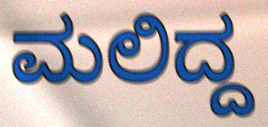
ಮಲಿದ್ದ